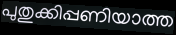
പുതുക്കിപ്പണിയാത്ത